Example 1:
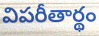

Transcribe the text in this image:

విపరీతార్థం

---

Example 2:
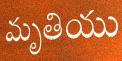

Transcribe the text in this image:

మృతియు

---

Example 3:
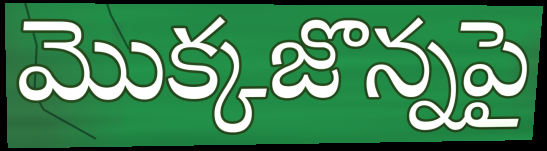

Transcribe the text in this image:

మొక్కజొన్నపై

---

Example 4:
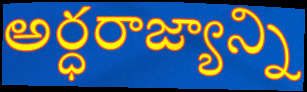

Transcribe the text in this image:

అర్ధరాజ్యాన్ని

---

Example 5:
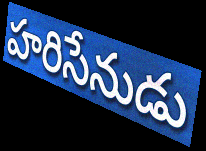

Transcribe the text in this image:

హరిసేనుడు